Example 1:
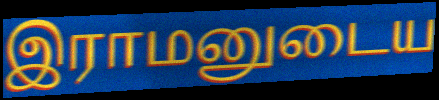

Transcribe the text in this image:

இராமனுடைய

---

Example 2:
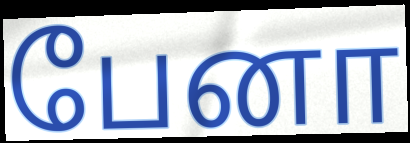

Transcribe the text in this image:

பேனா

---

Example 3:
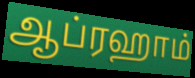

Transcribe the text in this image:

ஆப்ரஹாம்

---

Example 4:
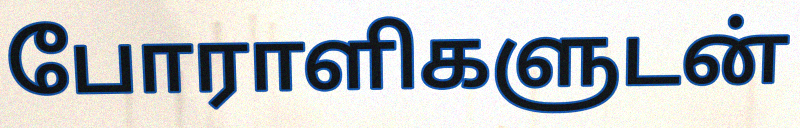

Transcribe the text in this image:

போராளிகளுடன்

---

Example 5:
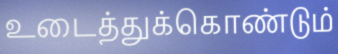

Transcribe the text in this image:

உடைத்துக்கொண்டும்